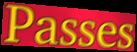
Passes